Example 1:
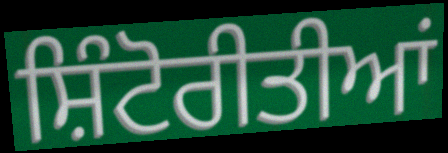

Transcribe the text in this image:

ਸ਼ਿੰਟੋਰੀਤੀਆਂ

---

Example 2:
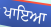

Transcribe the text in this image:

ਖਾਇਆ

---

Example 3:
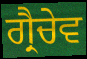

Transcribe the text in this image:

ਗ੍ਰੈਚੇਵ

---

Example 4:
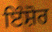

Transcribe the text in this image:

ਇੰਸ਼ੋਰ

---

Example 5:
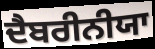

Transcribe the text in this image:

ਦੈਬਰੀਨੀਯਾ